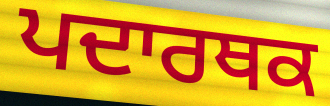
ਪਦਾਰਥਕ